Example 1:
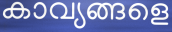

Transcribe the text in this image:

കാവ്യങ്ങളെ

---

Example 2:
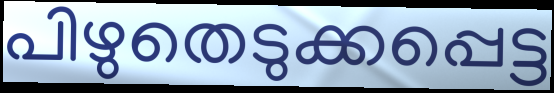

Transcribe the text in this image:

പിഴുതെടുക്കപ്പെട്ട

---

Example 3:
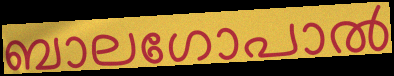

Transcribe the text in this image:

ബാലഗോപാൽ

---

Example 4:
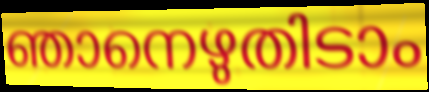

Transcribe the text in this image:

ഞാനെഴുതിടാം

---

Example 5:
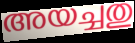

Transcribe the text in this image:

അയച്ചതു